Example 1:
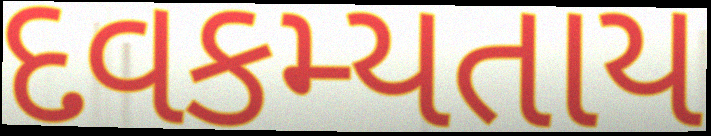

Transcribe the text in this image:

દવકમ્યતાય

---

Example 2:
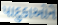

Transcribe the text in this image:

પાદુકાઓને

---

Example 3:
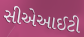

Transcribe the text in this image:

સીએઆઈટી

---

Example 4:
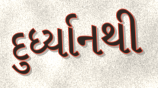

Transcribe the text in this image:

દુર્ધ્યાનથી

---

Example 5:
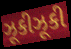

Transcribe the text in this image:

ઝૂકીઝૂકી